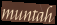
muntah